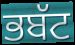
ਭਬੱਟ